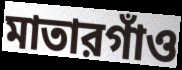
মাতারগাঁও